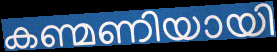
കണ്മണിയായി